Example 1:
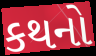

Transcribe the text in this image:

કથનો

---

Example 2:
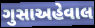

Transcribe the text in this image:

ગુસાઅહેવાલ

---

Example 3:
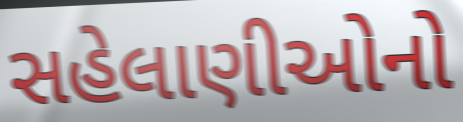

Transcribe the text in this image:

સહેલાણીઓનો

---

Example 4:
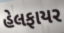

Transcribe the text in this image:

હેલફાયર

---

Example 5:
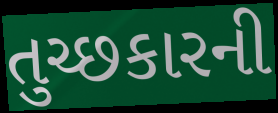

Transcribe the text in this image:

તુચ્છકારની